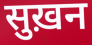
सुख़न